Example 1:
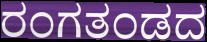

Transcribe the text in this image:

ರಂಗತಂಡದ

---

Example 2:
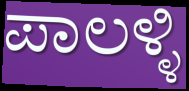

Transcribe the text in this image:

ಪಾಲಳ್ಳಿ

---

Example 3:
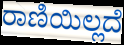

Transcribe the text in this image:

ರಾಣಿಯಿಲ್ಲದೆ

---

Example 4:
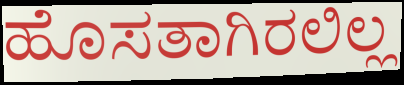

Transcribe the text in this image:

ಹೊಸತಾಗಿರಲಿಲ್ಲ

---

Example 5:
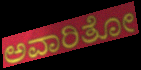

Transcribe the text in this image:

ಅವಾರಿತೋ